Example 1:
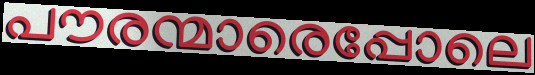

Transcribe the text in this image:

പൗരന്മാരെപ്പോലെ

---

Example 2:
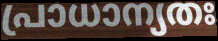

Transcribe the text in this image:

പ്രാധാന്യതഃ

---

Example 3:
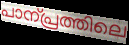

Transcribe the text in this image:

പാന്പ്രത്തിലെ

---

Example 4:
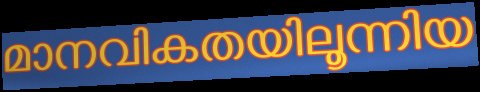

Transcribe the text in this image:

മാനവികതയിലൂന്നിയ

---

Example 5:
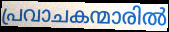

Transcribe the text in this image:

പ്രവാചകന്മാരിൽ